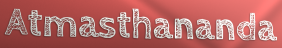
Atmasthananda